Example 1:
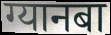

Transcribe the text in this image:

ग्यानबा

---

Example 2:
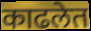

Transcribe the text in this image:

काढलेत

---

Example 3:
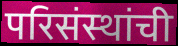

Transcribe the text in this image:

परिसंस्थांची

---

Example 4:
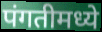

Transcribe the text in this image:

पंगतीमध्ये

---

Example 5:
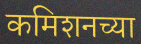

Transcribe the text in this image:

कमिशनच्या